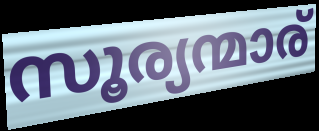
സൂര്യന്മാര്